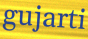
gujarti